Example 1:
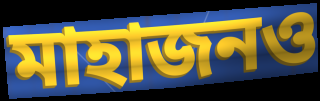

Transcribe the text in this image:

মাহাজনও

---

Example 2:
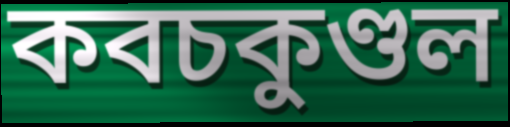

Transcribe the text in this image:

কবচকুণ্ডল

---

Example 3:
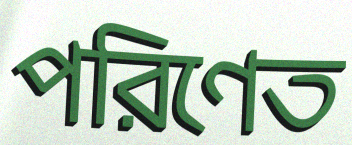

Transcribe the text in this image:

পরিণেত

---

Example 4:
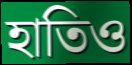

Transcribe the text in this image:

হাতিও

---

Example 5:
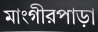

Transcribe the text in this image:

মাংগীরপাড়া